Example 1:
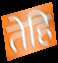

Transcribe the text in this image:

तेहि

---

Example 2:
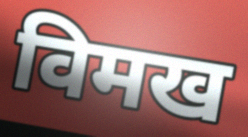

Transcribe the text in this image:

विमख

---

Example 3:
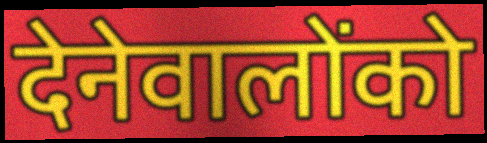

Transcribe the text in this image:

देनेवालोंको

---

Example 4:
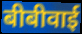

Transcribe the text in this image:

बीबीवाई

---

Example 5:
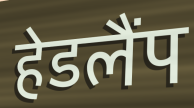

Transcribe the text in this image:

हेडलैंप